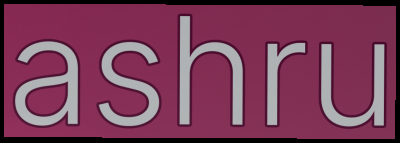
ashru